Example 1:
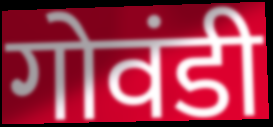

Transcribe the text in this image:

गोवंडी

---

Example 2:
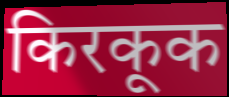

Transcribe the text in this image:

किरकूक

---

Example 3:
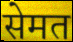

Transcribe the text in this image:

सेमत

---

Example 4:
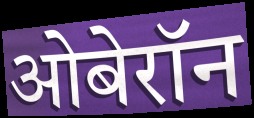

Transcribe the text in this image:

ओबेरॉन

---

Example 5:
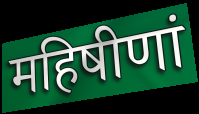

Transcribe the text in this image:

महिषीणां